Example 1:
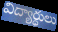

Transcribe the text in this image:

విద్యార్ధులు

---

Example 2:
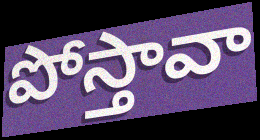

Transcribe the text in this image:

పోస్తావా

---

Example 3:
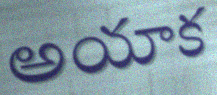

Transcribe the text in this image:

అయాక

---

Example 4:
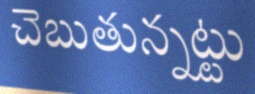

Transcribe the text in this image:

చెబుతున్నట్టు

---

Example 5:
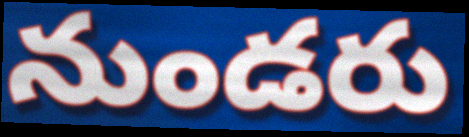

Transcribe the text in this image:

నుండరు